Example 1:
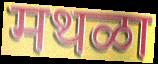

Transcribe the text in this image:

मथळा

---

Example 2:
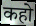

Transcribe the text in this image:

कहो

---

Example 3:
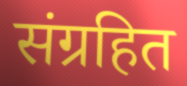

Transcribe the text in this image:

संग्रहित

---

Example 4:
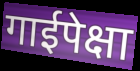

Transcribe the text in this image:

गाईपेक्षा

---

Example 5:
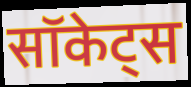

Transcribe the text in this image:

सॉकेट्स